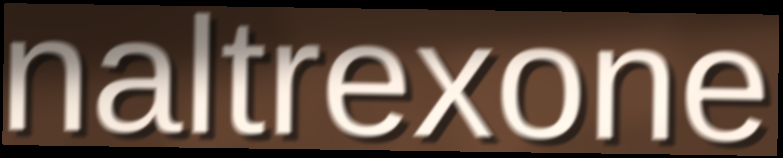
naltrexone